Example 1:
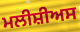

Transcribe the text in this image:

ਮਲੀਸ਼ੀਅਸ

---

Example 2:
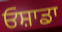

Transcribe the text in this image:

ਓਸ਼ਾਡਾ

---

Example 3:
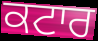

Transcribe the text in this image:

ਕਟਾਰ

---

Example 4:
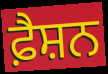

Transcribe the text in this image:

ਫ਼ੈਸ਼ਨ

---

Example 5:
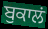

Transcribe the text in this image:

ਬੁਕਾਲਂ